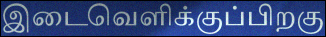
இடைவெளிக்குப்பிறகு